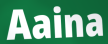
Aaina